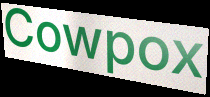
Cowpox